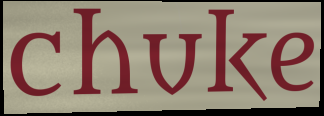
chuke